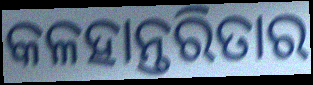
କଳହାନ୍ତରିତାର